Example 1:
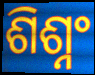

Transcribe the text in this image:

ଶିଶ୍ନଂ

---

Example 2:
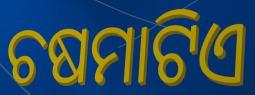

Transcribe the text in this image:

ଚଷମାଟିଏ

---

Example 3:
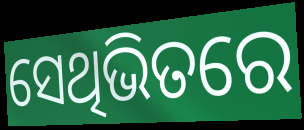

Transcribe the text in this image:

ସେଥିଭିତରେ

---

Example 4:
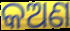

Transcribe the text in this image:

କଅଣ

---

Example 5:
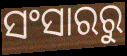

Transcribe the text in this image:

ସଂସାରରୁ